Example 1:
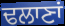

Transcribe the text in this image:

ਢਲਾਣਾਂ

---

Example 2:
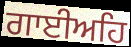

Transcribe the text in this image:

ਗਾਈਅਹਿ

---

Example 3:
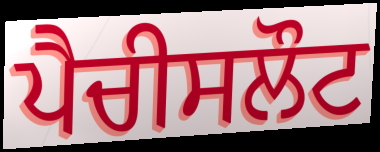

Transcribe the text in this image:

ਪੈਚੀਸਲੌਟ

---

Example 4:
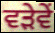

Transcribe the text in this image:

ਵੜੇਵੇਂ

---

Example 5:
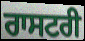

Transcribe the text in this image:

ਰਾਸਟਰੀ